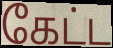
கேட்ட